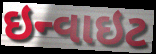
ઇન્વાઇટ